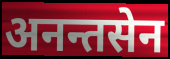
अनन्तसेन